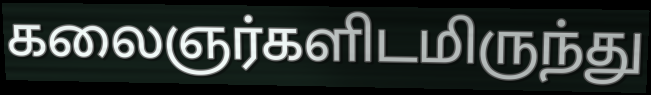
கலைஞர்களிடமிருந்து